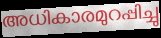
അധികാരമുറപ്പിച്ചു